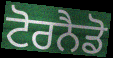
ਟੋਰਨੈਡੋ